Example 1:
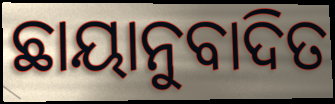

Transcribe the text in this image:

ଛାୟାନୁବାଦିତ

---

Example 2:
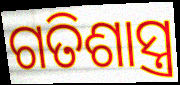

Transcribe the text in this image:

ଗତିଶାସ୍ତ୍ର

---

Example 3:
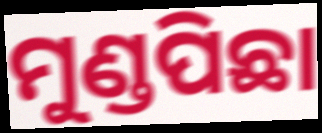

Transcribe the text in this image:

ମୁଣ୍ଡପିଛା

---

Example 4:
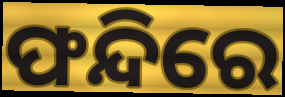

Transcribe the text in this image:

ଫନ୍ଦିରେ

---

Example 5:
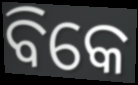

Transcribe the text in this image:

ବିକେ